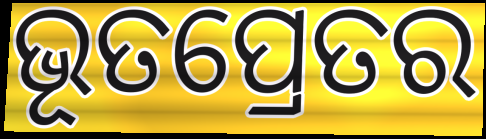
ଭୂତପ୍ରେତର